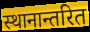
स्थानान्तरित